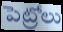
పెట్రోలు